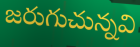
జరుగుచున్నవి